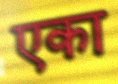
एका